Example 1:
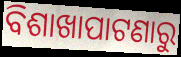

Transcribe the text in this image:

ବିଶାଖାପାଟଣାରୁ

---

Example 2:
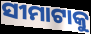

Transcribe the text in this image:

ସୀମାଟାକୁ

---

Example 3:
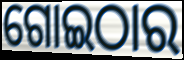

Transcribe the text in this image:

ଗୋଇଠାର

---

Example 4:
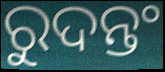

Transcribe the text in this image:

ରୁଦନ୍ତଂ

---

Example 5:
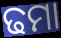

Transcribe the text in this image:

ଢମା